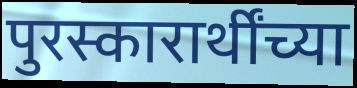
पुरस्कारार्थींच्या